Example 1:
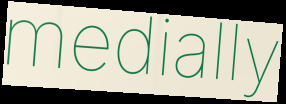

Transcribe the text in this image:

medially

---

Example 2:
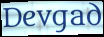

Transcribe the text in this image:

Devgad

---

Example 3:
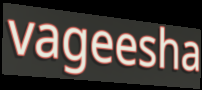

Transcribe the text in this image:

vageesha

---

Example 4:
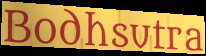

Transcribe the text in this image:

Bodhsutra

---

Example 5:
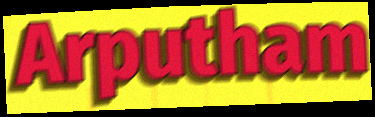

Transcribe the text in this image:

Arputham